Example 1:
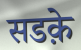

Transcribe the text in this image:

सडक़े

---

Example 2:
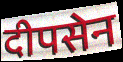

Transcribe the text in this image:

दीपसेन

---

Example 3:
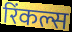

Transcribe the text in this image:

रिंकल्स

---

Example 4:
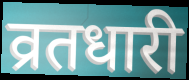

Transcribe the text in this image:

व्रतधारी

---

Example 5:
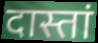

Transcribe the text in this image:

दास्तां